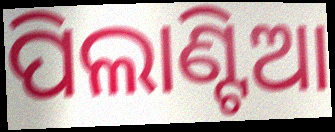
ପିଲାଣ୍ଟିଆ